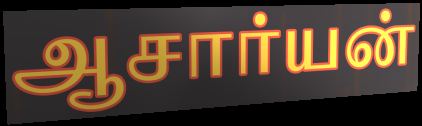
ஆசார்யன்